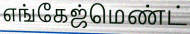
எங்கேஜ்மெண்ட்